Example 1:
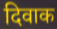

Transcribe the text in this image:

दिवाक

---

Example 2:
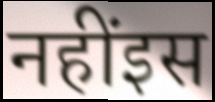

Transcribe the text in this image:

नहींइस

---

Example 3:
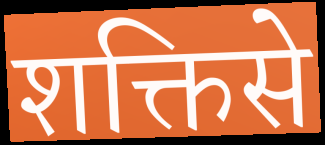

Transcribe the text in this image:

शक्तिसे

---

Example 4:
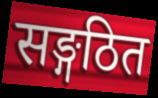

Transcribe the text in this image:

सङ्गठित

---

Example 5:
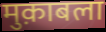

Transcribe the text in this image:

मुक़ाबला